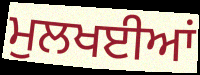
ਮੁਲਖਈਆਂ